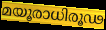
മയൂരാധിരൂഢ